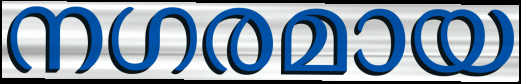
നഗരമായ